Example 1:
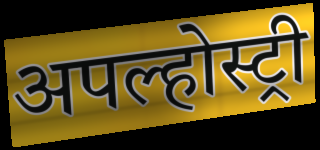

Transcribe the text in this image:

अपल्होस्ट्री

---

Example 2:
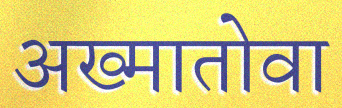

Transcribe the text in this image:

अख्मातोवा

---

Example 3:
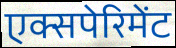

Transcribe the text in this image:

एक्सपेरिमेंट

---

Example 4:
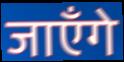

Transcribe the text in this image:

जाएँगे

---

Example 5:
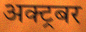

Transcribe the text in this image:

अक्ट्रबर